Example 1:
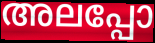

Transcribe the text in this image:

അലപ്പോ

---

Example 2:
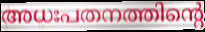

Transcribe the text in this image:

അധഃപതനത്തിന്റെ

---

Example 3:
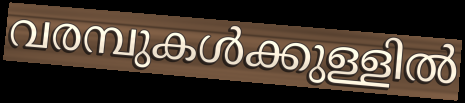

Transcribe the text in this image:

വരമ്പുകൾക്കുള്ളിൽ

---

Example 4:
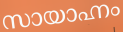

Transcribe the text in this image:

സായാഹ്നം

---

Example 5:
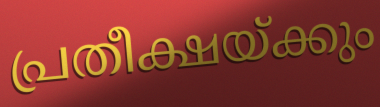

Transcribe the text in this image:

പ്രതീക്ഷയ്ക്കും